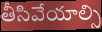
తీసివేయాల్సి